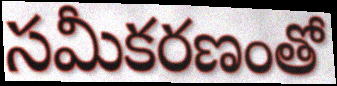
సమీకరణంతో